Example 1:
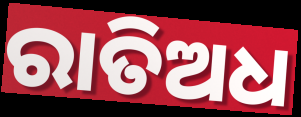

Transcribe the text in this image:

ରାତିଅଧ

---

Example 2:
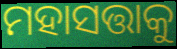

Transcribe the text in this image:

ମହାସତ୍ତାକୁ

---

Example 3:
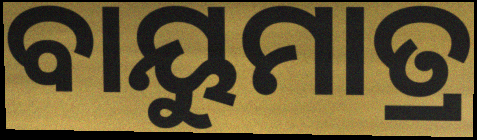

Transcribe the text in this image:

ବାୟୁମାତ୍ର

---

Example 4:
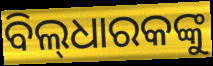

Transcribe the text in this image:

ବିଲ୍‌ଧାରକଙ୍କୁ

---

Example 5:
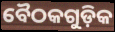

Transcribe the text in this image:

ବୈଠକଗୁଡ଼ିକ